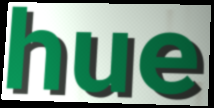
hue